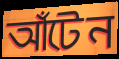
আঁটেন